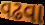
વઢવા